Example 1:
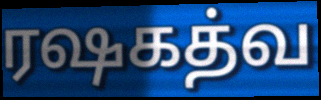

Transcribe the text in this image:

ரஷகத்வ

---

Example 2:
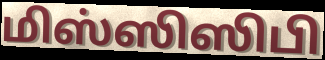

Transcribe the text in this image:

மிஸ்ஸிஸிபி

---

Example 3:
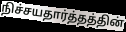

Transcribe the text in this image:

நிச்சயதார்த்தத்தின்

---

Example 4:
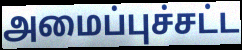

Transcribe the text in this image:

அமைப்புச்சட்ட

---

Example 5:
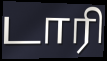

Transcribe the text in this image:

டாரி